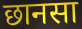
छानसा